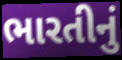
ભારતીનું